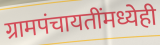
ग्रामपंचायतींमध्येही